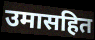
उमासहित